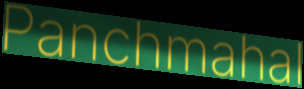
Panchmahal